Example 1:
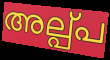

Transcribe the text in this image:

അല്പ്പ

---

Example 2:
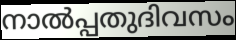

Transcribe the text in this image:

നാൽപ്പതുദിവസം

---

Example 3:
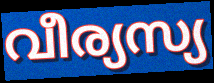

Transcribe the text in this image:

വീര്യസ്യ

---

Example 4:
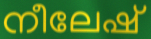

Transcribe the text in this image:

നീലേഷ്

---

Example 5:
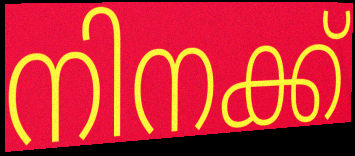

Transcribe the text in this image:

നിനക്ക്